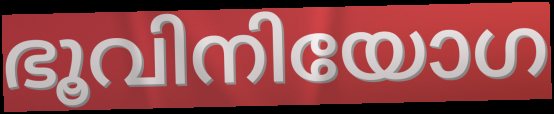
ഭൂവിനിയോഗ